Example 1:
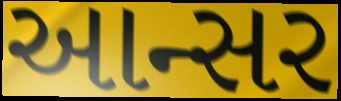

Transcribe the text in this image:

આન્સર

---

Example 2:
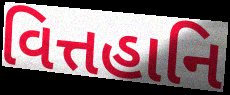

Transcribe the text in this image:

વિત્તહાનિ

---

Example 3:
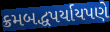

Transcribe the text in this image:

ક્રમબદ્ધપર્યાયપણે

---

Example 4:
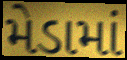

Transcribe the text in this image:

મેડામાં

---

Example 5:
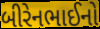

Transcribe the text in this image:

બીરેનભાઈનો